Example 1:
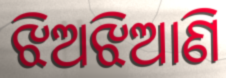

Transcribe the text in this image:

ଝିଅଝିଆଣି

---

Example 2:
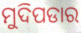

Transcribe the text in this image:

ମୁଦିପଡାର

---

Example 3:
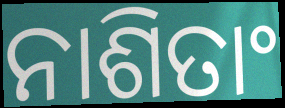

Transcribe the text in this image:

ନାଶିତାଂ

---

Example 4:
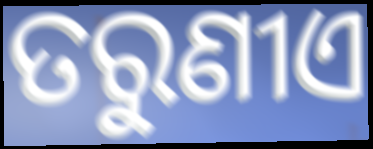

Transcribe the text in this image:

ତରୁଣୀଏ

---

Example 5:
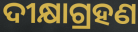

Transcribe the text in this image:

ଦୀକ୍ଷାଗ୍ରହଣ